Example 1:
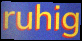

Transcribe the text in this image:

ruhig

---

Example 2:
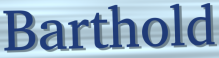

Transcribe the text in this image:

Barthold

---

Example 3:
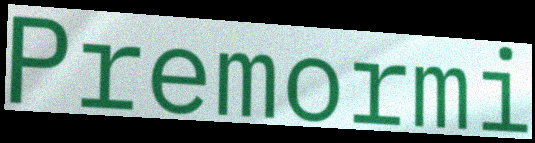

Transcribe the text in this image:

Premormi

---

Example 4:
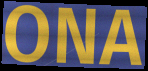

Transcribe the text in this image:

ONA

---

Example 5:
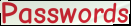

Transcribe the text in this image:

Passwords